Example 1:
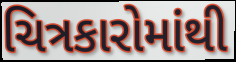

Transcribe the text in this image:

ચિત્રકારોમાંથી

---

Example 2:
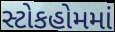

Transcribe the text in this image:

સ્ટોકહોમમાં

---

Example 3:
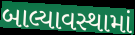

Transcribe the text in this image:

બાલ્યાવસ્થામાં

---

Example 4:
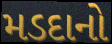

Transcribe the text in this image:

મડદાનો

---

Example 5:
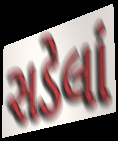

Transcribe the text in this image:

સડેલાં